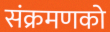
संक्रमणको